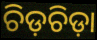
ଚିଡ଼ଚିଡ଼ା